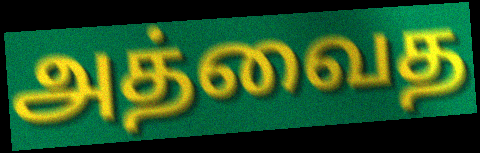
அத்வைத